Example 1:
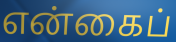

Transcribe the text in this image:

என்கைப்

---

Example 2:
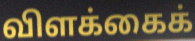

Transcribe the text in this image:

விளக்கைக்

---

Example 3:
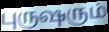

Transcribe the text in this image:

புருஷரும்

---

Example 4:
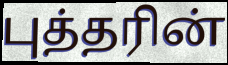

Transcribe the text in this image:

புத்தரின்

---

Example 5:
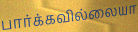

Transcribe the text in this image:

பார்க்கவில்லையா